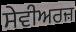
ਸੇਵੀਅਰਜ਼